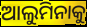
ଆଲୁମିନାକୁ